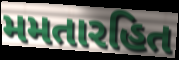
મમતારહિત